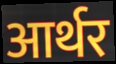
आर्थर